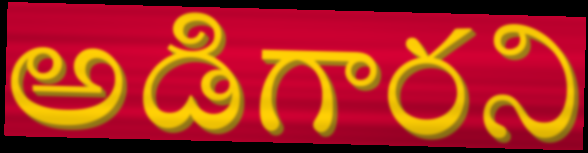
అడిగారని